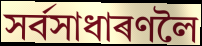
সৰ্বসাধাৰণলৈ